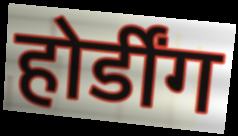
होर्डींग